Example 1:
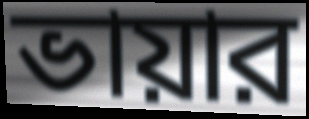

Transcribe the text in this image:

ভায়ার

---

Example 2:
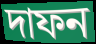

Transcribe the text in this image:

দাফন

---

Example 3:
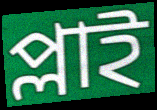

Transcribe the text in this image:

প্লাই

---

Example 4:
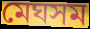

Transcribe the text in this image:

মেঘসম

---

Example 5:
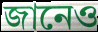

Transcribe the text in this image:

জানেও